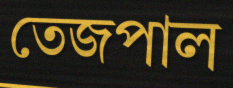
তেজপাল